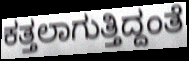
ಕತ್ತಲಾಗುತ್ತಿದ್ದಂತೆ